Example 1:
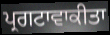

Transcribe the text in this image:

ਪ੍ਰਗਟਾਵਾਕੀਤਾ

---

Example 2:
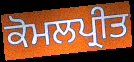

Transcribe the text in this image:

ਕੋਮਲਪ੍ਰੀਤ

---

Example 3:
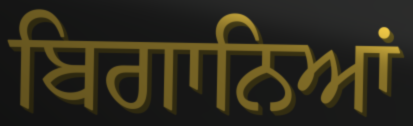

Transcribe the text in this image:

ਬਿਗਾਨਿਆਂ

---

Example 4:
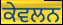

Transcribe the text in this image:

ਕੇਵਲਨ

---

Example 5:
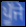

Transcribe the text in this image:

ਪੂੱਜੇ